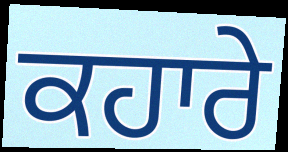
ਕਹਾਰੇ